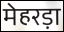
मेहरड़ा